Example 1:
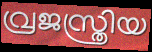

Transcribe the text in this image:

വ്രജസ്ത്രിയ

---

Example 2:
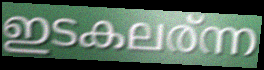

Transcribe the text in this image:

ഇടകലര്ന്ന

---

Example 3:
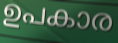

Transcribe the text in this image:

ഉപകാര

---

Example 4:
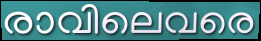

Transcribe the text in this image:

രാവിലെവരെ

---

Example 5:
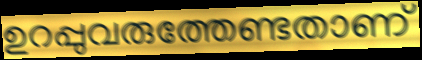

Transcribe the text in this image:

ഉറപ്പുവരുത്തേണ്ടതാണ്